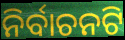
ନିର୍ବାଚନଟି